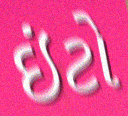
ઇંટો